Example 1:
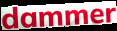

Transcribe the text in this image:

dammer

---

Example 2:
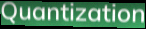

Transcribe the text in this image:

Quantization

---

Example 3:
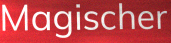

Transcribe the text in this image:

Magischer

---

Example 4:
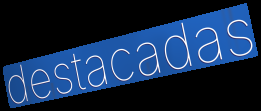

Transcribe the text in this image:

destacadas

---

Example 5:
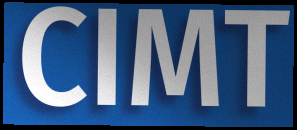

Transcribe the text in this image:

CIMT